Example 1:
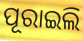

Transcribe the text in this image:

ପୂରାଇଲି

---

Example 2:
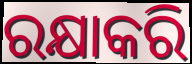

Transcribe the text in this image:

ରକ୍ଷାକରି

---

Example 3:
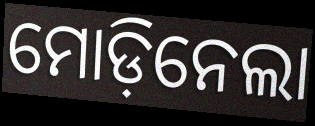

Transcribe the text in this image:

ମୋଡ଼ିନେଲା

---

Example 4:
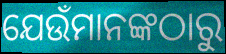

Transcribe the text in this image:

ଯେଉଁମାନଙ୍କଠାରୁ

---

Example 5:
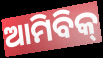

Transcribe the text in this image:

ଆମିବିକ୍